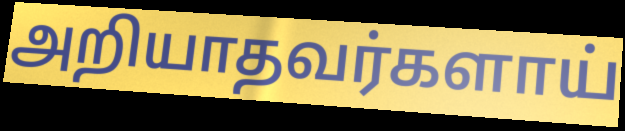
அறியாதவர்களாய்